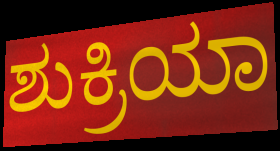
ಶುಕ್ರಿಯಾ